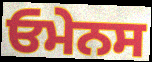
ਓਮੇਨਸ